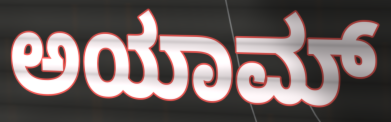
ಅಯಾಮ್